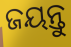
ଜୟନ୍ତୁ